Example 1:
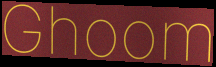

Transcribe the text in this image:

Ghoom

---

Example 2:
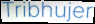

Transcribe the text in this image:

Tribhujer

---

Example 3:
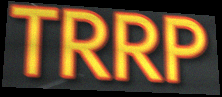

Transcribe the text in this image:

TRRP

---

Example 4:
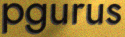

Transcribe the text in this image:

pgurus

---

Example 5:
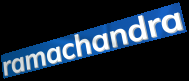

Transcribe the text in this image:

ramachandra